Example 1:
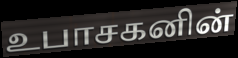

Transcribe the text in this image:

உபாசகனின்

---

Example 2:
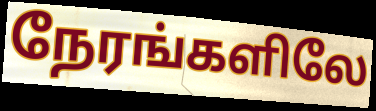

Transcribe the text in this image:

நேரங்களிலே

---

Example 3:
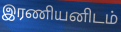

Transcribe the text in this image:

இரணியனிடம்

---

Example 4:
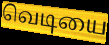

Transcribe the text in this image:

வெடியை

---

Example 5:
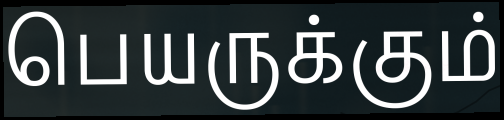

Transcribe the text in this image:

பெயருக்கும்